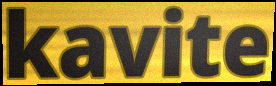
kavite